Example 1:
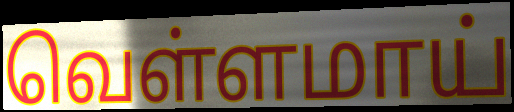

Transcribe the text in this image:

வெள்ளமாய்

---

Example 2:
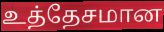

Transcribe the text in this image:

உத்தேசமான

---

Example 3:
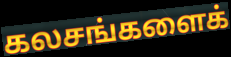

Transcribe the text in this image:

கலசங்களைக்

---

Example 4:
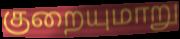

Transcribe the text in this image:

குறையுமாறு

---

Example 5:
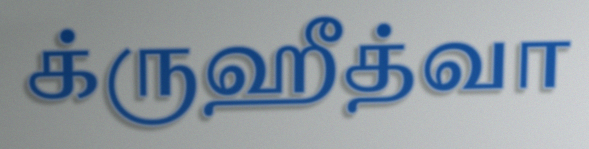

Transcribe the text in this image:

க்ருஹீத்வா